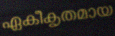
ഏകീകൃതമായ